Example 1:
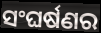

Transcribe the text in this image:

ସଂଘର୍ଷଣର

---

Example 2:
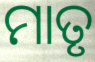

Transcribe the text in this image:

ମାତୃ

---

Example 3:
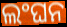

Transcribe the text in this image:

ଲଂଘନ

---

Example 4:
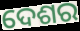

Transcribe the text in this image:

ଦେଶର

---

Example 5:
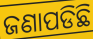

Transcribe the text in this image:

ଜଣାପଡିଛି